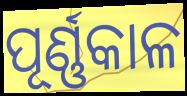
ପୂର୍ଣ୍ଣକାଳ